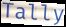
Tally